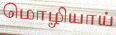
மொழியாய்